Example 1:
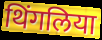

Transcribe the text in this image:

थिंगलिया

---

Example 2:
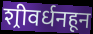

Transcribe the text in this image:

श्रीवर्धनहून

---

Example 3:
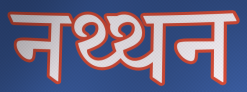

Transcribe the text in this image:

नथ्थन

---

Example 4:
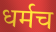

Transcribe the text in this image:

धर्मच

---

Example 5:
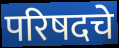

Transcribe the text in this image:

परिषदचे